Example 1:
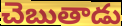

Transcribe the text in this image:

చెబుతాడు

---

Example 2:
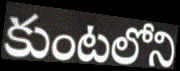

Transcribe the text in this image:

కుంటలోని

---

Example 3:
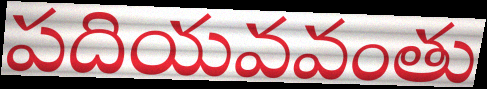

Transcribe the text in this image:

పదియవవంతు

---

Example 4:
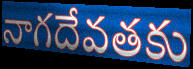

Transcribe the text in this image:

నాగదేవతకు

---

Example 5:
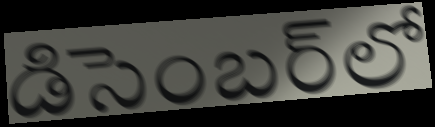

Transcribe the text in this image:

డిసెంబర్‌లో